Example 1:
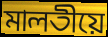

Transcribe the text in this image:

মালতীয়ে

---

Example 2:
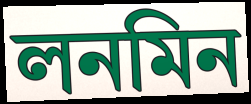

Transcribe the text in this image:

লনমিন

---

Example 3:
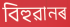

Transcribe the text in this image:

বিহুৱানৰ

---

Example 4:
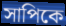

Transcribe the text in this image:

সাপিকে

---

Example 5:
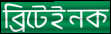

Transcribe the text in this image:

ব্ৰিটেইনক